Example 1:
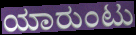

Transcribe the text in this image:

ಯಾರುಂಟು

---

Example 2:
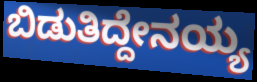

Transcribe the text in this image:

ಬಿಡುತಿದ್ದೇನಯ್ಯ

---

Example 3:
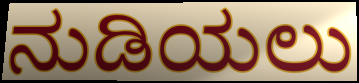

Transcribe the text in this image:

ನುಡಿಯಲು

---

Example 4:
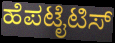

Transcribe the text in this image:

ಹೆಪಟೈಟಿಸ್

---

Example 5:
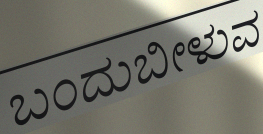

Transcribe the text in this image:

ಬಂದುಬೀಳುವ